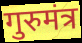
गुरुमंत्र